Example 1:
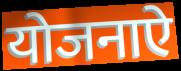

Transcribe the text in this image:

योजनाऐ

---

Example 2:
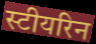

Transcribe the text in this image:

स्टीयरिन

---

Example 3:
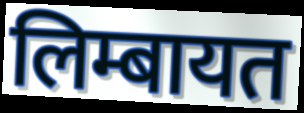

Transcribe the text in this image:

लिम्बायत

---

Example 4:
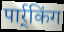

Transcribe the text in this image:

पार्र्किंग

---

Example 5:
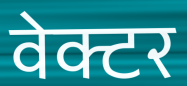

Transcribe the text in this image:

वेक्टर